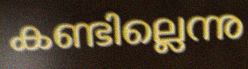
കണ്ടില്ലെന്നു